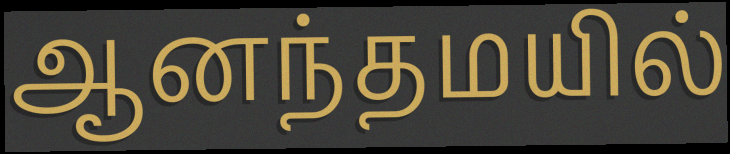
ஆனந்தமயில்